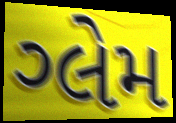
ગ્લેમ